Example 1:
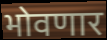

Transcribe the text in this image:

भोवणार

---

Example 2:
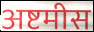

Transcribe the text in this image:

अष्टमीस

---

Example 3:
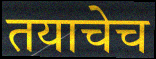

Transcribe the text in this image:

तयाचेच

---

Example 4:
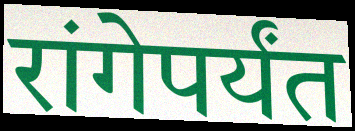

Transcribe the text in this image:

रांगेपर्यंत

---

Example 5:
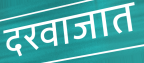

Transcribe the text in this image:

दरवाजात